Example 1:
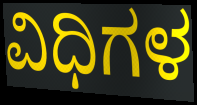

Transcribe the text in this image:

ವಿಧಿಗಳ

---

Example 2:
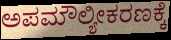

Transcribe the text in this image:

ಅಪಮೌಲ್ಯೀಕರಣಕ್ಕೆ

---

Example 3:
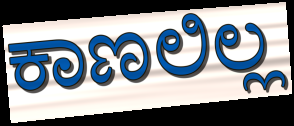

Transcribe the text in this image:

ಕಾಣಲಿಲ್ಲ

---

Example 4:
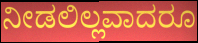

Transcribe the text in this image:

ನೀಡಲಿಲ್ಲವಾದರೂ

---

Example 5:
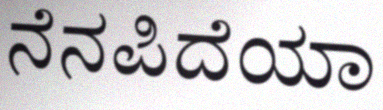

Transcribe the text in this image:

ನೆನಪಿದೆಯಾ